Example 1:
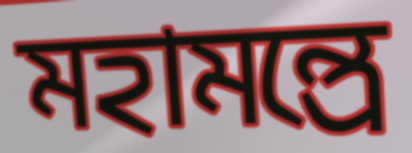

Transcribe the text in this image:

মহামন্ত্রে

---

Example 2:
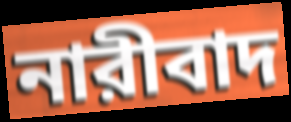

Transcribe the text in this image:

নারীবাদ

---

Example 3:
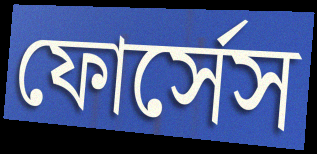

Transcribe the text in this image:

ফোর্সেস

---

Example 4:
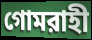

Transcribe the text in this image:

গোমরাহী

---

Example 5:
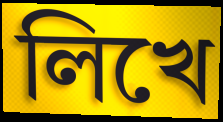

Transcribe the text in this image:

লিখে